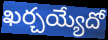
ఖర్చయ్యేదో